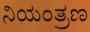
ನಿಯಂತ್ರಣ